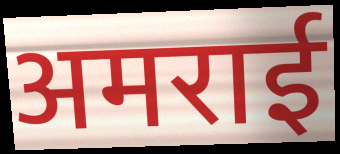
अमराई